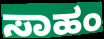
ಸಾಹಂ